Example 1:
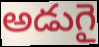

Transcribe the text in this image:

అడుగై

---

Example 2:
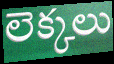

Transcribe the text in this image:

లెక్కలు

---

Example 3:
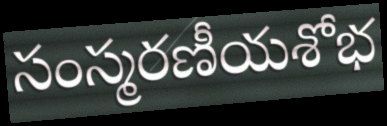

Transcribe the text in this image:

సంస్మరణీయశోభ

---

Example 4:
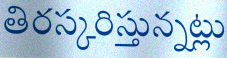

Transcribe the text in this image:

తిరస్కరిస్తున్నట్లు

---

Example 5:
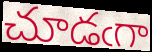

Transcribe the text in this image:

చూడఁగా